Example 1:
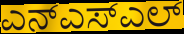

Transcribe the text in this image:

ಎನ್ಎಸ್ಎಲ್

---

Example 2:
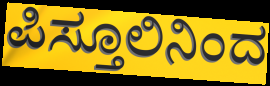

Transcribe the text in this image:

ಪಿಸ್ತೂಲಿನಿಂದ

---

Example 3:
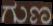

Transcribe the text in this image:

ಗುಣ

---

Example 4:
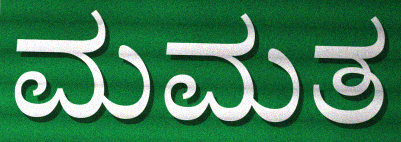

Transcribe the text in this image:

ಮಮತ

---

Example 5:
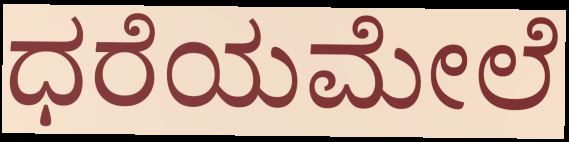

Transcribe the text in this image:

ಧರೆಯಮೇಲೆ